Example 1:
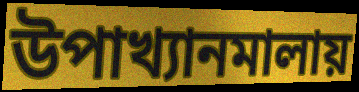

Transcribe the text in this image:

উপাখ্যানমালায়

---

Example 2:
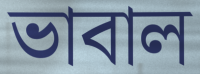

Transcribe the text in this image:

ভাবাল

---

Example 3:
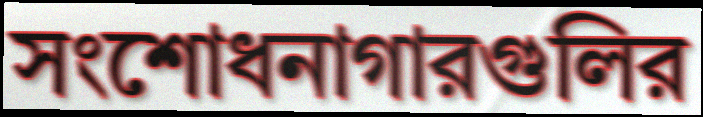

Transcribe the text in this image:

সংশোধনাগারগুলির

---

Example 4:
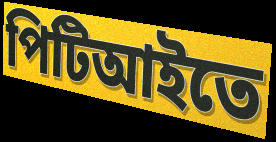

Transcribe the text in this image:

পিটিআইতে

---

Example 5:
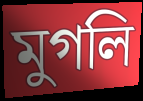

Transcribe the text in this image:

মুগলি